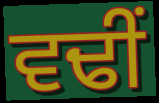
ਵਢੀਂ